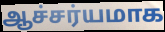
ஆச்சர்யமாக